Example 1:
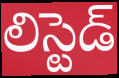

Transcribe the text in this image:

లిస్టెడ్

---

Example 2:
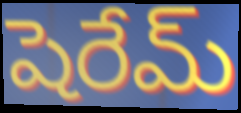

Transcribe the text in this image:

షెరేమ్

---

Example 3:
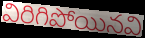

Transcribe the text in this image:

విరిగిపోయినవి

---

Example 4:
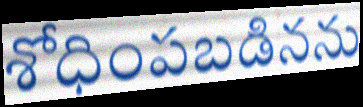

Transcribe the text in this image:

శోధింపబడినను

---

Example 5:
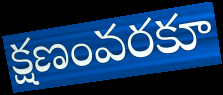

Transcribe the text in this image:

క్షణంవరకూ